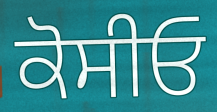
ਕੋਸੀਓ